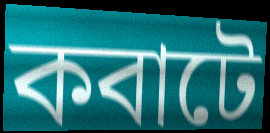
কবাটে